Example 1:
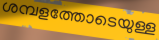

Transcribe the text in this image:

ശമ്പളത്തോടെയുള്ള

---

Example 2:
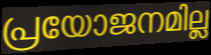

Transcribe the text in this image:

പ്രയോജനമില്ല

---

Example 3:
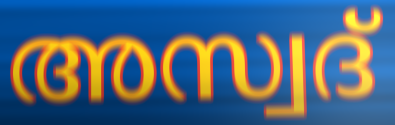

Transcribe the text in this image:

അസ്വദ്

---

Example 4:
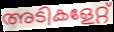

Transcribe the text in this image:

അടികളേറ്റ്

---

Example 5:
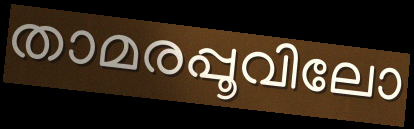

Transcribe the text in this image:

താമരപ്പൂവിലോ